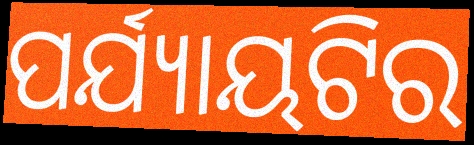
ପର୍ଯ୍ୟାୟଟିର